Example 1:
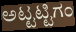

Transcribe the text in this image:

ಅಟ್ಟಟ್ಟಿಗಂ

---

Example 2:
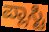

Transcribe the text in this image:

ಪ್ಲಾಸ್ಟಿ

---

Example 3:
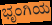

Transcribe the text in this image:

ಭೃಂಗಿಯ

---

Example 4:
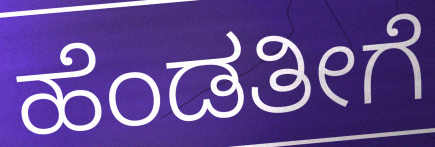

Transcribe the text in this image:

ಹೆಂಡತೀಗೆ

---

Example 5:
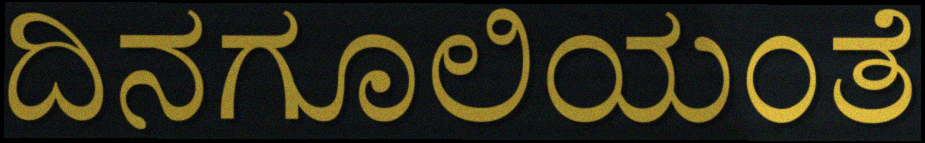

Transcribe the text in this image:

ದಿನಗೂಲಿಯಂತೆ